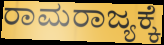
ರಾಮರಾಜ್ಯಕ್ಕೆ